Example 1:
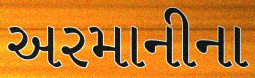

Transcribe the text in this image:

અરમાનીના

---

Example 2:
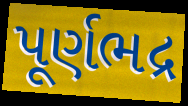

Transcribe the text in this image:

પૂર્ણભદ્ર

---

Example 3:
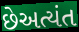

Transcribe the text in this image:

છેઅત્યંત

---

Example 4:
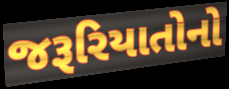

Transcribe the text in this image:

જરૂરિયાતોનો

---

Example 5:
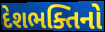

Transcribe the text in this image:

દેશભક્તિનો